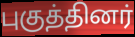
புகுத்தினர்